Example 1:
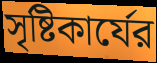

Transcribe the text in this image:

সৃষ্টিকার্যের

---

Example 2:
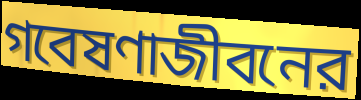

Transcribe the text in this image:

গবেষণাজীবনের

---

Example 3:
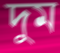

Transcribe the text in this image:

দুম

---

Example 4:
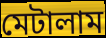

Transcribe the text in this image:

মেটালাম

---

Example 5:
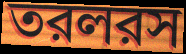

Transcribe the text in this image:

তরলরস